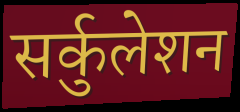
सर्कुलेशन